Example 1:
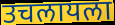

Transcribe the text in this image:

उचलायला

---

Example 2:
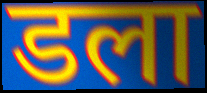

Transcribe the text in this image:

डला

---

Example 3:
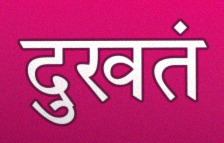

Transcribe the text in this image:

दुखतं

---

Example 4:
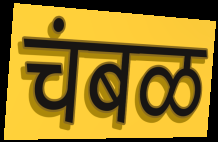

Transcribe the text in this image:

चंबळ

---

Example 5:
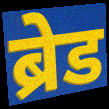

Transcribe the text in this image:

ब्रेड